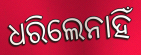
ଧରିଲେନାହିଁ